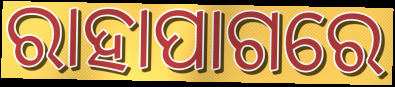
ରାହାପାଗରେ